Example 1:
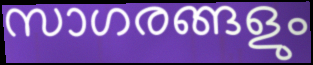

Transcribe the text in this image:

സാഗരങ്ങളും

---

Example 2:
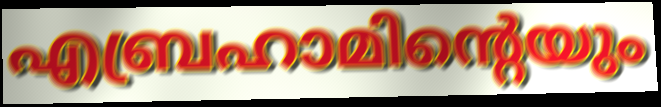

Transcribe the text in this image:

എബ്രഹാമിന്റെയും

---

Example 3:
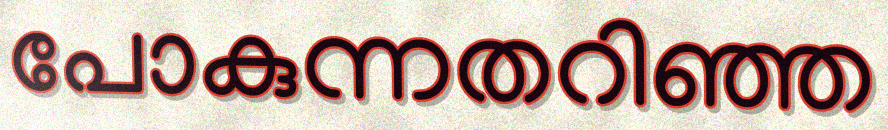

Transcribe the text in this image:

പോകുന്നതറിഞ്ഞ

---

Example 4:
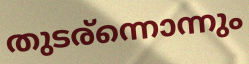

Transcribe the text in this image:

തുടര്ന്നൊന്നും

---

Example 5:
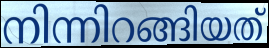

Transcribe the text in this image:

നിന്നിറങ്ങിയത്